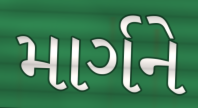
માર્ગને